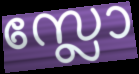
സ്ലോ